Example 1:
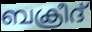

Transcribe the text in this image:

ബക്രീദ്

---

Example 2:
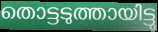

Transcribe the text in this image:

തൊട്ടടുത്തായിട്ടു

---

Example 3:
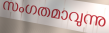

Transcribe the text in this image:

സംഗതമാവുന്നു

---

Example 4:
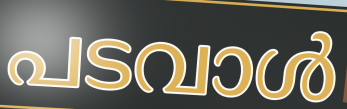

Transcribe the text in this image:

പടവാൾ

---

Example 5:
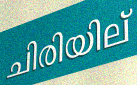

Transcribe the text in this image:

ചിരിയില്